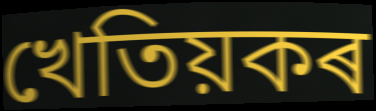
খেতিয়কৰ